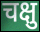
चक्षु